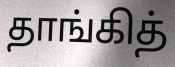
தாங்கித்